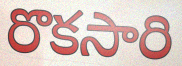
రొకసారి